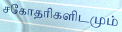
சகோதரிகளிடமும்